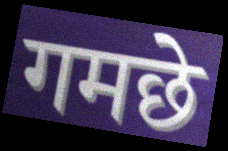
गमछे